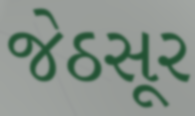
જેઠસૂર